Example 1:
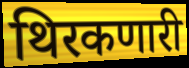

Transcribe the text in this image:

थिरकणारी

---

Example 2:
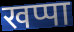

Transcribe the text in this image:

खप्पा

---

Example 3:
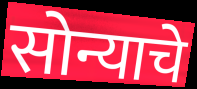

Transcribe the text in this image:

सोन्याचे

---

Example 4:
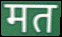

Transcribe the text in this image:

मत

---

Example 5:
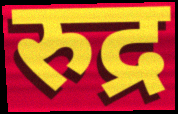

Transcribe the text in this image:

रुद्र